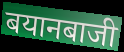
बयानबाजी